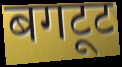
बगटूट